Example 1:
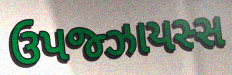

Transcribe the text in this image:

ઉપજ્ઝાયસ્સ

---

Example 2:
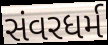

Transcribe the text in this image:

સંવરધર્મ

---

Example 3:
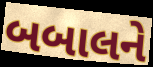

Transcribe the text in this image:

બબાલને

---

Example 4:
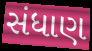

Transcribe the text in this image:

સંધાણ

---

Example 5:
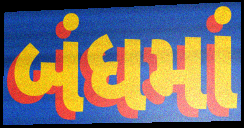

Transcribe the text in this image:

બંધમાં